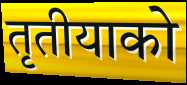
तृतीयाको